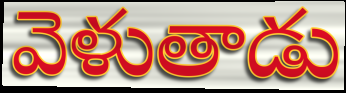
వెళుతాడు